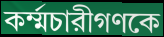
কর্ম্মচারীগণকে